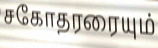
சகோதரரையும்